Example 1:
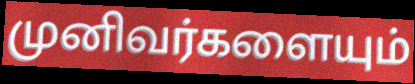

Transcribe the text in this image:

முனிவர்களையும்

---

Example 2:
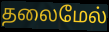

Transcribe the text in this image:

தலைமேல்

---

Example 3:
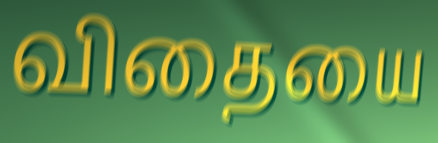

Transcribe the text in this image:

விதையை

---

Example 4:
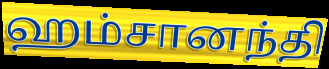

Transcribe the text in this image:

ஹம்சானந்தி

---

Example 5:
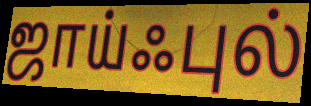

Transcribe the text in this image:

ஜாய்ஃபுல்